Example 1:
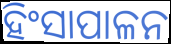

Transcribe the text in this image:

ହିଂସାପାଳନ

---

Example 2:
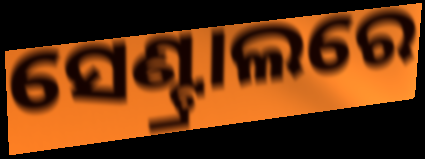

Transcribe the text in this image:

ସେଣ୍ଟ୍ରାଲରେ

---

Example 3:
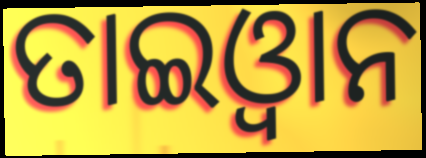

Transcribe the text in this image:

ତାଇଓ୍ୱାନ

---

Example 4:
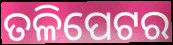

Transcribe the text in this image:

ତଳିପେଟର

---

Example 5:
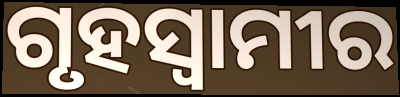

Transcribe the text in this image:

ଗୃହସ୍ୱାମୀର